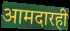
आमदारही